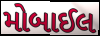
મોબાઈલ